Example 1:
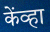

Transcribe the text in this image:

केंव्हा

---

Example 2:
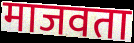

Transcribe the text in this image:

माजवता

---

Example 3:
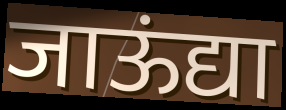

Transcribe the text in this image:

जाऊंद्या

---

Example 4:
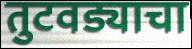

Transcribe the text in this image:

तुटवड्याचा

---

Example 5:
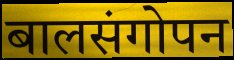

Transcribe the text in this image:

बालसंगोपन